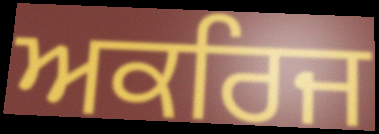
ਅਕਰਿਜ